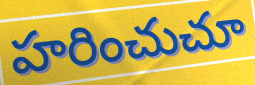
హరించుచూ